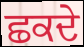
ਛਕਦੇ